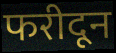
फरीदून